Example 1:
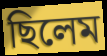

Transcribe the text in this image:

ছিলেম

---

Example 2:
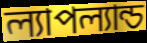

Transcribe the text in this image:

ল্যাপল্যান্ড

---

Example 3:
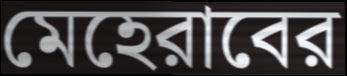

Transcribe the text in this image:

মেহেরাবের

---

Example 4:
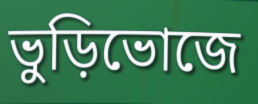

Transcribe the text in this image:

ভুড়িভোজে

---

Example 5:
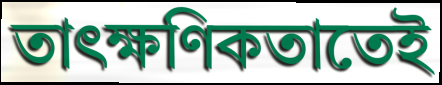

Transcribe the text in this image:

তাৎক্ষণিকতাতেই